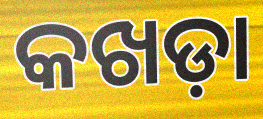
କଖଡ଼ା